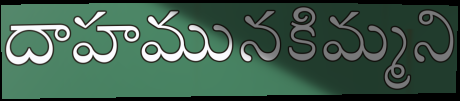
దాహమునకిమ్మని